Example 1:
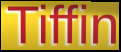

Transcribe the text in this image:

Tiffin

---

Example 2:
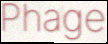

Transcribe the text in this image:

Phage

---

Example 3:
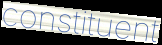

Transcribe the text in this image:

constituent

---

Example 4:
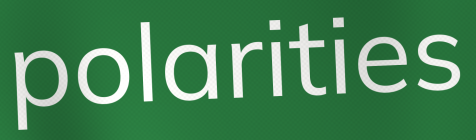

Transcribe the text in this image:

polarities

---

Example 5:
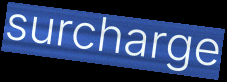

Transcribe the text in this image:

surcharge